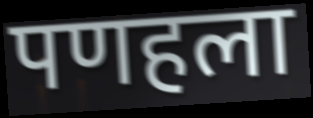
पणहला